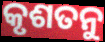
କୃଶତନୁ